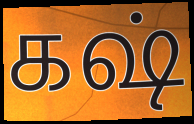
கஷ்